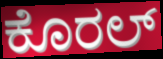
ಕೊರಲ್